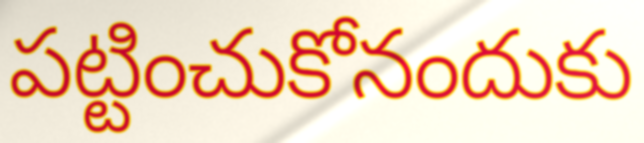
పట్టించుకోనందుకు